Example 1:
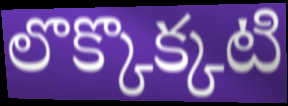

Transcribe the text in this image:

లొక్కొక్కటి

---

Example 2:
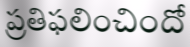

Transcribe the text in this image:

ప్రతిఫలించిందో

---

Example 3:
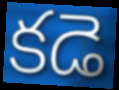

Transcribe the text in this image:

కడె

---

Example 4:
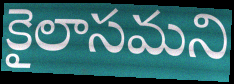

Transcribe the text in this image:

కైలాసమని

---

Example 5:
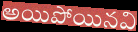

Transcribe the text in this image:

అయిపోయినవి